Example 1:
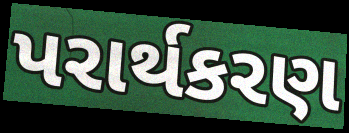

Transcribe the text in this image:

પરાર્થકરણ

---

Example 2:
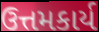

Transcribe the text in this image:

ઉત્તમકાર્ય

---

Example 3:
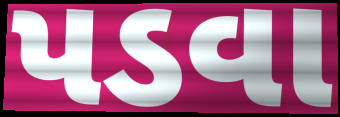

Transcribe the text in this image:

પડવા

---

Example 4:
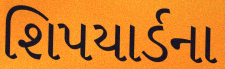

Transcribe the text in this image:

શિપયાર્ડના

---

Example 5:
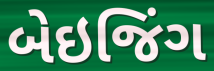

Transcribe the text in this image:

બેઇજિંગ